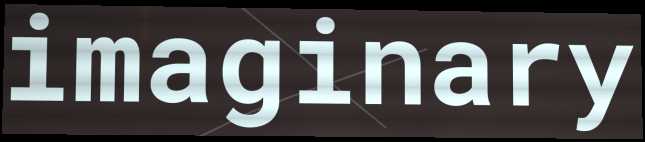
imaginary